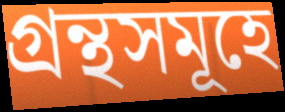
গ্ৰন্থসমূহে